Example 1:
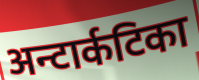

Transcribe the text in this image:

अन्टार्कटिका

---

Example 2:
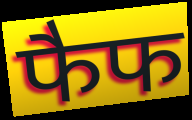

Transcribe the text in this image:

फैफ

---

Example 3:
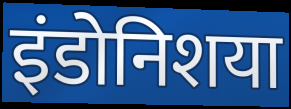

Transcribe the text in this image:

इंडोनिशया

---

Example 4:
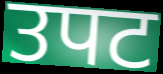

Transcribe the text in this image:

उपट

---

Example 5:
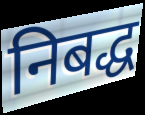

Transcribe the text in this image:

निबद्ध